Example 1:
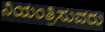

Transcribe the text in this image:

ನಿಯಂತ್ರಿಸುವರು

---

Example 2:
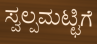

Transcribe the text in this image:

ಸ್ವಲ್ಪಮಟ್ಟಿಗೆ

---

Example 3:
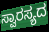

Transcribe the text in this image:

ಸ್ವಾರಸ್ಯದ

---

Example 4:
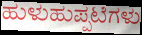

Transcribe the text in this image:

ಹುಳುಹುಪ್ಪಟೆಗಳು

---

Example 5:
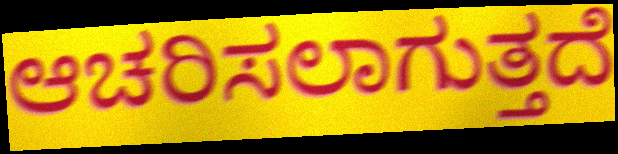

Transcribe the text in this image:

ಆಚರಿಸಲಾಗುತ್ತದೆ